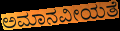
ಅಮಾನವೀಯತೆ